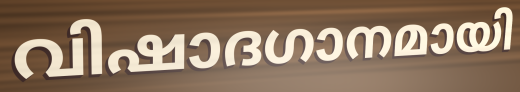
വിഷാദഗാനമായി